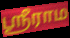
ஸ்ரீராம